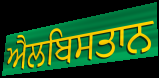
ਐਲਬਿਸਤਾਨ